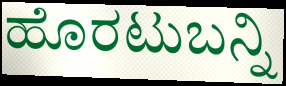
ಹೊರಟುಬನ್ನಿ